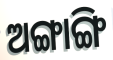
ଅଙ୍ଗାଙ୍ଗି